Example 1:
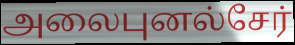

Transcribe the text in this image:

அலைபுனல்சேர்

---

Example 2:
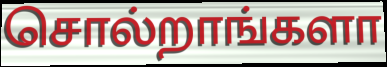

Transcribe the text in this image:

சொல்றாங்களா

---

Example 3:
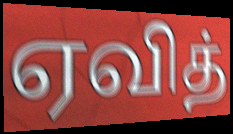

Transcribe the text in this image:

ஏவித்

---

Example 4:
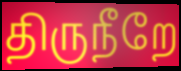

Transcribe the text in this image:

திருநீறே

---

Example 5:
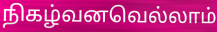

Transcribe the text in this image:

நிகழ்வனவெல்லாம்